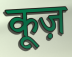
कूज़